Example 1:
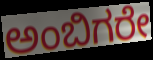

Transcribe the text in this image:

ಅಂಬಿಗರೇ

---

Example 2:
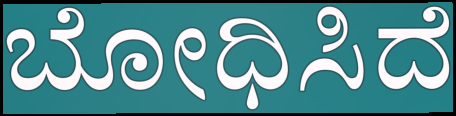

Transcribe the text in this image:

ಬೋಧಿಸಿದೆ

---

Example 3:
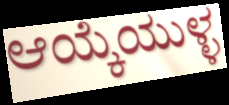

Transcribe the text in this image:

ಆಯ್ಕೆಯುಳ್ಳ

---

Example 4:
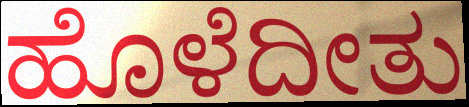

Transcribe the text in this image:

ಹೊಳೆದೀತು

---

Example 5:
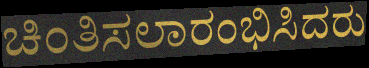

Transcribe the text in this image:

ಚಿಂತಿಸಲಾರಂಭಿಸಿದರು